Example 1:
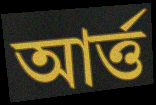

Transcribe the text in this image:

আৰ্ত্ত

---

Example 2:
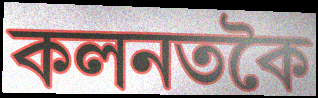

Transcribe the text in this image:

কলনতকৈ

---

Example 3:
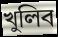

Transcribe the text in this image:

খুলিব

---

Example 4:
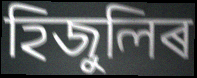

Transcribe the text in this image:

হিজুলিৰ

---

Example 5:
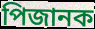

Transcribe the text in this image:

পিজানক